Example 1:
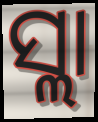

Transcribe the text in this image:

ସ୍ଲା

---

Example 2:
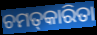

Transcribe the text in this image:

ଚମତ୍‌କାରିତା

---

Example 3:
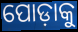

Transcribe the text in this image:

ପୋଡ଼ାକୁ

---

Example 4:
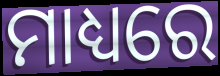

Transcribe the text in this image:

ମାଧ୍ୟରେ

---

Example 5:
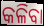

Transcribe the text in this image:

କଳିବା